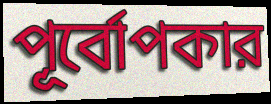
পূর্বোপকার